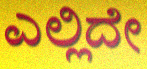
ಎಲ್ಲಿದೇ